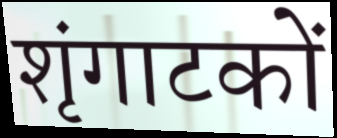
शृंगाटकों